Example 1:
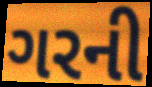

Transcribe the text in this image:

ગરની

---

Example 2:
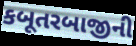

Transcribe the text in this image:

કબૂતરબાજીની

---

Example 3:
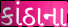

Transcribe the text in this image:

કાંઠાના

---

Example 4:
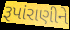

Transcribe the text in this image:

રૂપાંરાણીને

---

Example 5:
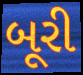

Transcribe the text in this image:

બૂરી